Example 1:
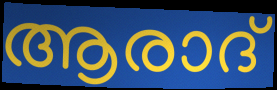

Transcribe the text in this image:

ആരാദ്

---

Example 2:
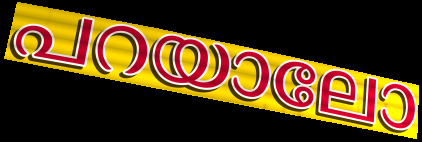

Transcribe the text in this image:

പറയാലോ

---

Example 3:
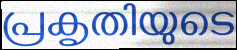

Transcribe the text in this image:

പ്രകൃതിയുടെ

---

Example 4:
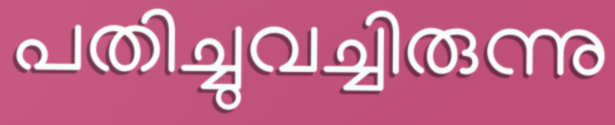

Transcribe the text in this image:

പതിച്ചുവച്ചിരുന്നു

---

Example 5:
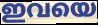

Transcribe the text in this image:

ഇവയെ